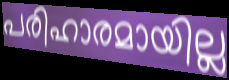
പരിഹാരമായില്ല